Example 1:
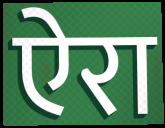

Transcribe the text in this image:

ऐरा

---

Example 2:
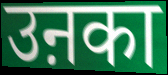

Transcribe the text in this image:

उऩका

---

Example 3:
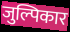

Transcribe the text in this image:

जुल्पिकार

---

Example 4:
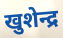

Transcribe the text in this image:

खुशेन्द्र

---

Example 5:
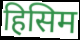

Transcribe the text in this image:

हिसिम